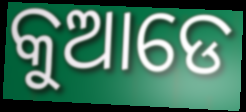
କୁଆଡେ